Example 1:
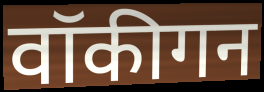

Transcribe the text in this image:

वॉकीगन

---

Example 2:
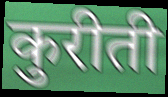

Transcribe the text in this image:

कुरीती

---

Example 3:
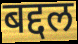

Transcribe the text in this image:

बद्दल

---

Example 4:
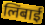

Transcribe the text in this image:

लिंबाई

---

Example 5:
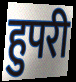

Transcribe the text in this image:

हुपरी